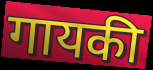
गायकी